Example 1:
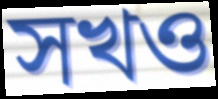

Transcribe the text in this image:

সখও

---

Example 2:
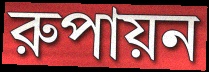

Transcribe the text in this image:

রুপায়ন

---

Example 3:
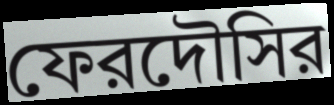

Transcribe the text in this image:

ফেরদৌসির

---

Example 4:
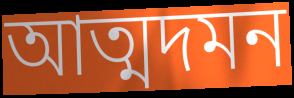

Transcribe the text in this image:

আত্মদমন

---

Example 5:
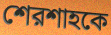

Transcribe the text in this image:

শেরশাহকে